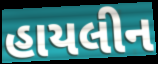
હાયલીન